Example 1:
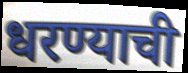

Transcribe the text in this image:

धरण्याची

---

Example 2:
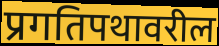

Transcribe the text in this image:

प्रगतिपथावरील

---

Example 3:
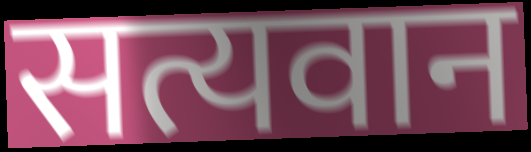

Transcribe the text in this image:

सत्यवान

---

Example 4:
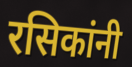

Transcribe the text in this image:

रसिकांनी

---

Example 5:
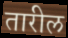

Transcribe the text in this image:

तारील